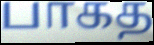
பாகத